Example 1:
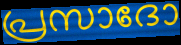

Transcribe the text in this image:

പ്രസാദോ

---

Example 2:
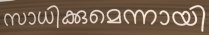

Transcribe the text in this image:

സാധിക്കുമെന്നായി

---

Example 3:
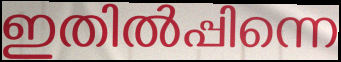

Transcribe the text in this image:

ഇതിൽപ്പിന്നെ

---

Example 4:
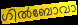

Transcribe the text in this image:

ഗിൽബോവാ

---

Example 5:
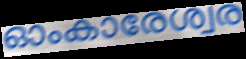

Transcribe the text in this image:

ഓംകാരേശ്വര